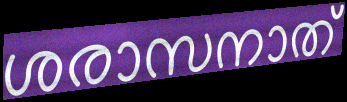
ശരാസനാത്